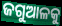
ଜଗୁଆଳକୁ